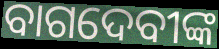
ବାଗଦେବୀଙ୍କ